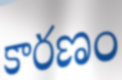
కారణం